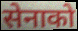
सेनाको